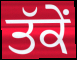
ਤੱਕੇਂ